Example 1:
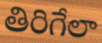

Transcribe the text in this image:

తిరిగేలా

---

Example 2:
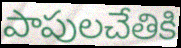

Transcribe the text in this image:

పాపులచేతికి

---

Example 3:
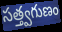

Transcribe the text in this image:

సత్త్వగుణం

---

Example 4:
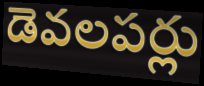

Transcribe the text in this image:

డెవలపర్లు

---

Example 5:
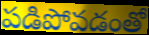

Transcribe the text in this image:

పడిపోవడంతో